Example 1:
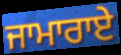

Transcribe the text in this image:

ਜਾਮਾਰਾਏ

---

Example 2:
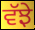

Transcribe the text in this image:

ਵੱਝੇ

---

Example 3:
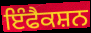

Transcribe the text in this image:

ਇੰਫੈਕਸ਼ਨ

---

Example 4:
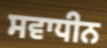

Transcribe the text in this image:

ਸਵਾਧੀਨ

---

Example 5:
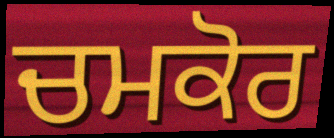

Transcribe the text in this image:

ਚਮਕੋਰ